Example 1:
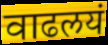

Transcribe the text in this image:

वाढलयं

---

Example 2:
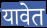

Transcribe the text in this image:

यावेत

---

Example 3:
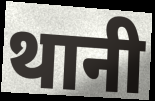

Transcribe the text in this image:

थानी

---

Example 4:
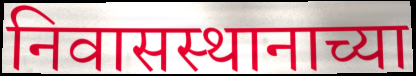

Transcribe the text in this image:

निवासस्थानाच्या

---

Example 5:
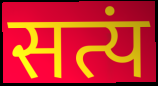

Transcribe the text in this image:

सत्यं